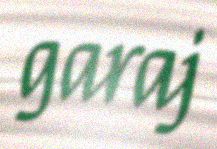
garaj